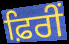
ਫ਼ਿਰੀਂ